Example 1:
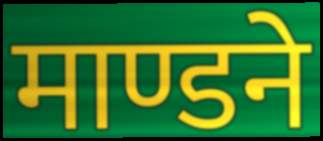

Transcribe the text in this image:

माण्डने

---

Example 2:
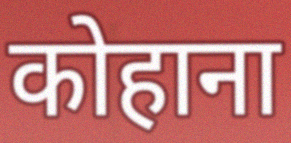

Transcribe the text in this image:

कोहाना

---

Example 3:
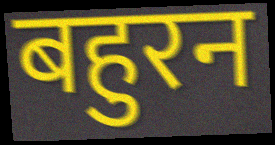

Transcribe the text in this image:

बहुरन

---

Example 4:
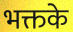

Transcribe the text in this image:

भक्तके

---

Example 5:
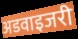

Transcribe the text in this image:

अडवाइजरी